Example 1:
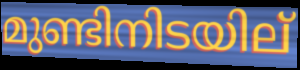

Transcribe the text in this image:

മുണ്ടിനിടയില്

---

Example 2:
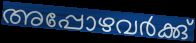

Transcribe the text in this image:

അപ്പോഴവർക്കു്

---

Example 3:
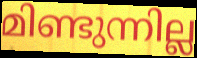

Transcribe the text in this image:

മിണ്ടുന്നില്ല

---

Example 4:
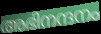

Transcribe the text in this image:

അഭിനന്ദനം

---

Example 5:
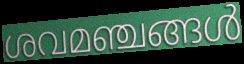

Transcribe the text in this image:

ശവമഞ്ചങ്ങൾ